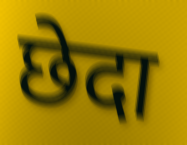
छेदा